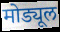
मोड्यूल